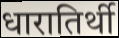
धारातिर्थी